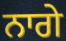
ਨਾਗੇ